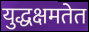
युद्धक्षमतेत